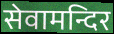
सेवामन्दिर